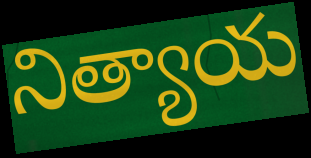
నిత్యాయ